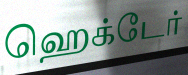
ஹெக்டேர்